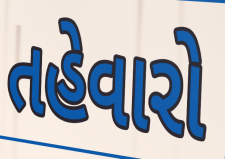
તહેવારો